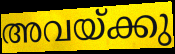
അവയ്ക്കു